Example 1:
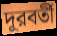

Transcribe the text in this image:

দূরবর্তী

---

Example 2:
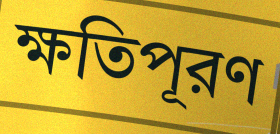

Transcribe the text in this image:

ক্ষতিপূরণ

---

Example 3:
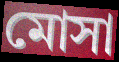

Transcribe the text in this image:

মোসা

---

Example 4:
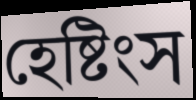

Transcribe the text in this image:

হেষ্টিংস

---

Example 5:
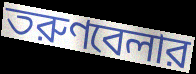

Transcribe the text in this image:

তরুণবেলার